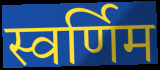
स्वर्णिम